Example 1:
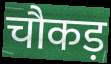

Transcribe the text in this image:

चौकड़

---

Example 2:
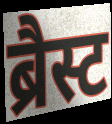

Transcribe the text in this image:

ब्रैस्ट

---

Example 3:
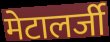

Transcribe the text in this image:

मेटालर्जी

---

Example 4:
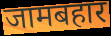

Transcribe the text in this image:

जामबहार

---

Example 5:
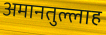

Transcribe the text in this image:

अमानतुल्लाह